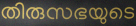
തിരുസഭയുടെ